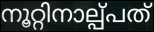
നൂറ്റിനാല്പ്പത്